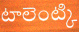
టాలెంట్కి